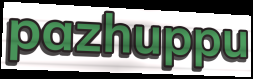
pazhuppu